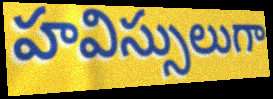
హవిస్సులుగా